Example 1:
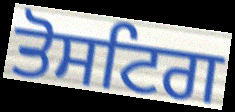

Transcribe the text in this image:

ਤੋਸਟਿਗ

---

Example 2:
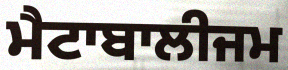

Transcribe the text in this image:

ਮੈਟਾਬਾਲੀਜਮ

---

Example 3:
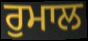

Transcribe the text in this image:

ਰੁਮਾਲ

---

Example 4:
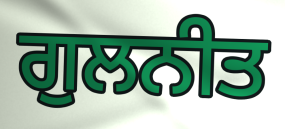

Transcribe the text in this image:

ਗੁਲਨੀਤ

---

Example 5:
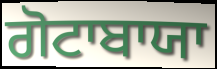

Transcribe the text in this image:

ਗੋਟਾਬਾਯਾ